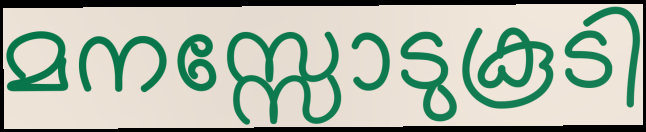
മനസ്സോടുകൂടി